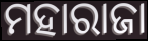
ମହାରାଜା